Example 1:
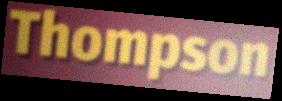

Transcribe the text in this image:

Thompson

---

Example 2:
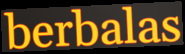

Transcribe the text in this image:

berbalas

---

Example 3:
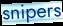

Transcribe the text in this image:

snipers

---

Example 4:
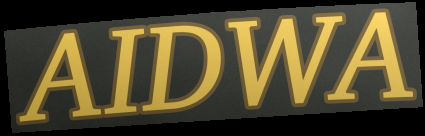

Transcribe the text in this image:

AIDWA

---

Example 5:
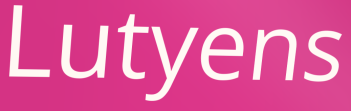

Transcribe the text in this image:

Lutyens